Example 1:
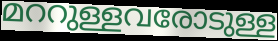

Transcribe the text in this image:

മററുള്ളവരോടുള്ള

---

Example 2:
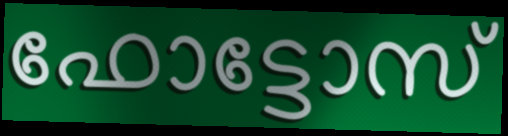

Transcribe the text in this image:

ഫോട്ടോസ്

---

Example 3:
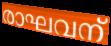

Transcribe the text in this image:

രാഘവന്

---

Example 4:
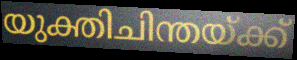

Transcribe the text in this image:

യുക്തിചിന്തയ്ക്ക്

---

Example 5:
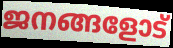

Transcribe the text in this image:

ജനങ്ങളോട്